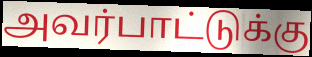
அவர்பாட்டுக்கு